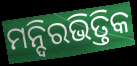
ମନ୍ଦିରଭିତ୍ତିକ